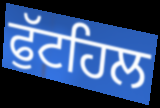
ਫੁੱਟਹਿਲ